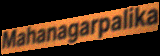
Mahanagarpalika